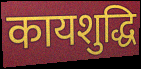
कायशुद्धि